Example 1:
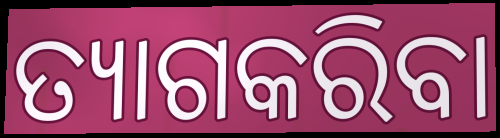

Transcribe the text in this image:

ତ୍ୟାଗକରିବା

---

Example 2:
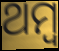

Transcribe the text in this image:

ଥମ୍ବ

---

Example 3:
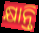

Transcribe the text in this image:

କ୍ଷାନ୍ତି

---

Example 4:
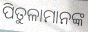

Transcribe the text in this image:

ପିତୁଳାମାନଙ୍କ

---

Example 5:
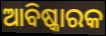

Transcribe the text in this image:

ଆବିଷ୍କାରକ